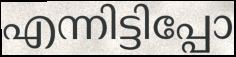
എന്നിട്ടിപ്പോ